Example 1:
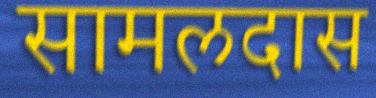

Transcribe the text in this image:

सामलदास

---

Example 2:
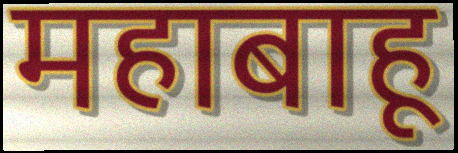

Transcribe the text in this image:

महाबाहू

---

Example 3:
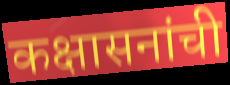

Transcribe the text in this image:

कक्षासनांची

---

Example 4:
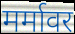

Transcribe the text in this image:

मर्मावर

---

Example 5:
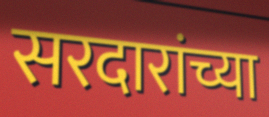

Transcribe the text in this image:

सरदारांच्या